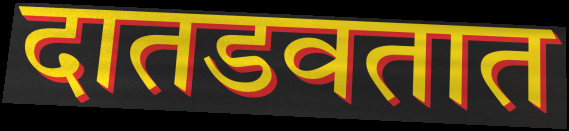
दातडवतात